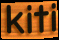
kiti